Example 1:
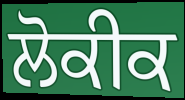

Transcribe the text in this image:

ਲੋਕੀਕ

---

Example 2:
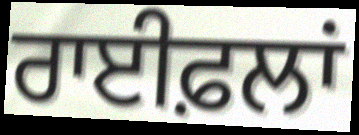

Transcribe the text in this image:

ਰਾਈਫ਼ਲਾਂ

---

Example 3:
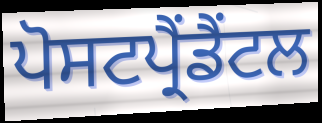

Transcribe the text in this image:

ਪੋਸਟਪ੍ਰੈਂਡੈਂਟਲ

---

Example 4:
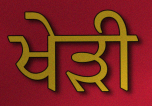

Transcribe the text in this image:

ਖੇੜੀ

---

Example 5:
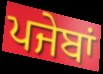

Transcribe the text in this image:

ਪਜੇਬਾਂ